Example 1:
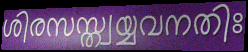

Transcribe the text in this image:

ശിരസസ്ത്വയ്യവനതിഃ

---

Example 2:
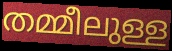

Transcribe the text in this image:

തമ്മീലുള്ള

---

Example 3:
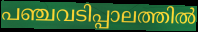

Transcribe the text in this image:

പഞ്ചവടിപ്പാലത്തിൽ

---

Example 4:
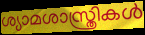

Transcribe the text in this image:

ശ്യാമശാസ്ത്രികൾ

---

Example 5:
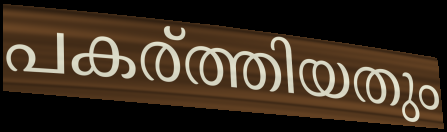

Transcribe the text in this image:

പകര്ത്തിയതും